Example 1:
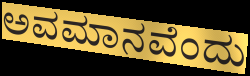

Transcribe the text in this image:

ಅವಮಾನವೆಂದು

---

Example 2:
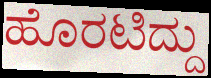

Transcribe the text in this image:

ಹೊರಟಿದ್ದು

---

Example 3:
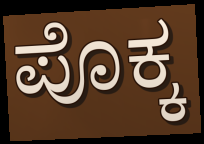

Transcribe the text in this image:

ಪೊಕ್ಕ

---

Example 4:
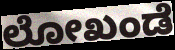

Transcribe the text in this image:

ಲೋಖಂಡೆ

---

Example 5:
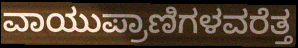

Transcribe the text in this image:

ವಾಯುಪ್ರಾಣಿಗಳವರೆತ್ತ